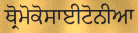
ਥ੍ਰੋਮੋਕੋਸਾਈਟੋਨੀਆ